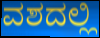
ವಶದಲ್ಲಿ